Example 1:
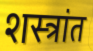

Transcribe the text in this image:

शस्त्रांत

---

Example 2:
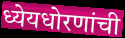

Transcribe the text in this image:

ध्येयधोरणांची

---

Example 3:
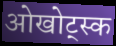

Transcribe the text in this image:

ओखोट्स्क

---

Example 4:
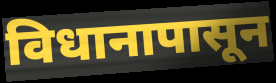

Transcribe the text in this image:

विधानापासून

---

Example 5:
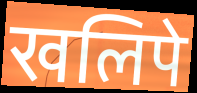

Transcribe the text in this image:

खलिपे